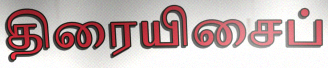
திரையிசைப்